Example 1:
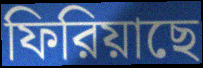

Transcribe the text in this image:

ফিরিয়াছে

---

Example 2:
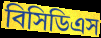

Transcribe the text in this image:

বিসিডিএস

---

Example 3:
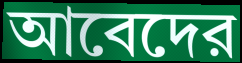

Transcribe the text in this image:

আবেদের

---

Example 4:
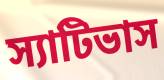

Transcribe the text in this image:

স্যাটিভাস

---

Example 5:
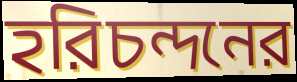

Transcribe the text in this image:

হরিচন্দনের